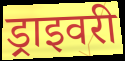
ड्राइवरी